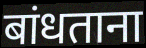
बांधताना